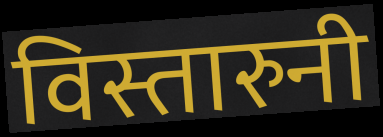
विस्तारुनी